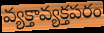
వ్యక్తావ్యక్తపరం